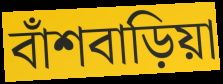
বাঁশবাড়িয়া